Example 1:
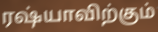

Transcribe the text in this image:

ரஷ்யாவிற்கும்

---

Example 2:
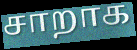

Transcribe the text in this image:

சாறாக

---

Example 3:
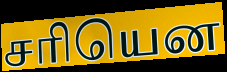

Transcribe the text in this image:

சரியென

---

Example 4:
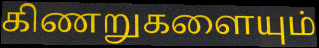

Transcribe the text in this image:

கிணறுகளையும்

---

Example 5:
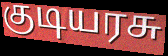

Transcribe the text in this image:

குடியரசு